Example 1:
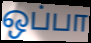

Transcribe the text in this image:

ஒப்பா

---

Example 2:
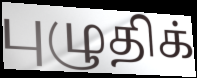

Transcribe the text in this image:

புழுதிக்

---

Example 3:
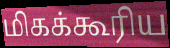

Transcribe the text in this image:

மிகக்கூரிய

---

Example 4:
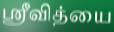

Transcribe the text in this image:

ஸ்ரீவித்யை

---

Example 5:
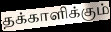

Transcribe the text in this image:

தக்காளிக்கும்